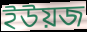
ইউয়জ